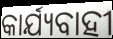
କାର୍ଯ୍ୟବାହୀ